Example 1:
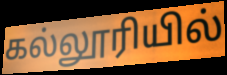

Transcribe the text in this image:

கல்லூரியில்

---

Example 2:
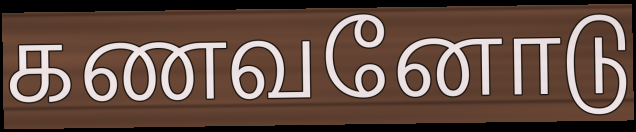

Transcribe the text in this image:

கணவனோடு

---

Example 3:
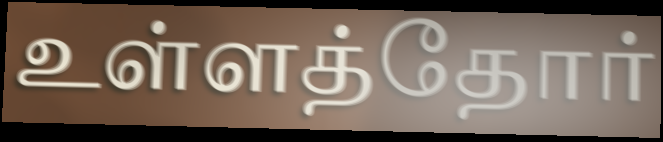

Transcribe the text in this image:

உள்ளத்தோர்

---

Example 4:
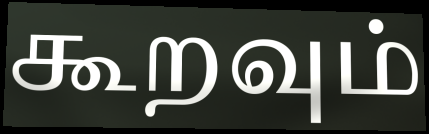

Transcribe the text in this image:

கூறவும்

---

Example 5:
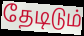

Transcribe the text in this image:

தேடிடும்